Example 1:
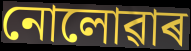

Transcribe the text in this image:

নোলোৱাৰ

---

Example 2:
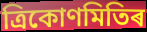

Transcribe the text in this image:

ত্ৰিকোণমিতিৰ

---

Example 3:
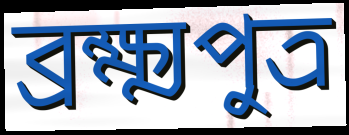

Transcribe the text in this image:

ব্ৰক্ষ্মপুত্ৰ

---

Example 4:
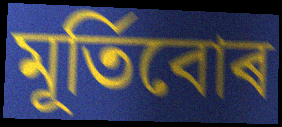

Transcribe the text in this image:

মূৰ্তিবোৰ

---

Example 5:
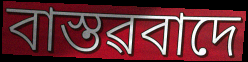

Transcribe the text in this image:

বাস্তৱবাদে